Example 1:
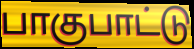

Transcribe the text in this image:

பாகுபாட்டு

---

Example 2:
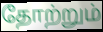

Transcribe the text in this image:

தோற்றும்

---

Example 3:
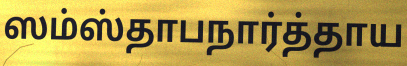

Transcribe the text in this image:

ஸம்ஸ்தாபநார்த்தாய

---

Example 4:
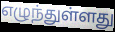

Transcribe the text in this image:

எழுந்துள்ளது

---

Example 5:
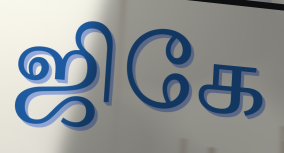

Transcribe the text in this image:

ஜிகே